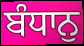
ਬੰਧਾਨੁ